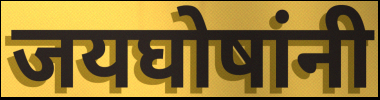
जयघोषांनी